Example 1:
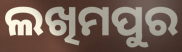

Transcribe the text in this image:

ଲଖିମପୁର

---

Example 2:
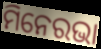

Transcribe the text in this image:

ମିନେରଭା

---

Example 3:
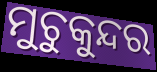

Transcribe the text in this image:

ମୁଚୁକୁନ୍ଦର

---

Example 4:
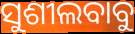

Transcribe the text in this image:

ସୁଶୀଲବାବୁ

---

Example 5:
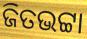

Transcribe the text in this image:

ଜିତଭଟ୍ଟା